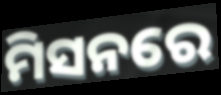
ମିସନରେ